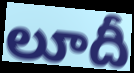
లూదీ